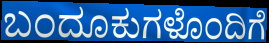
ಬಂದೂಕುಗಳೊಂದಿಗೆ